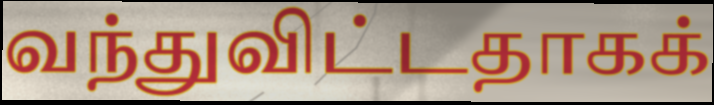
வந்துவிட்டதாகக்